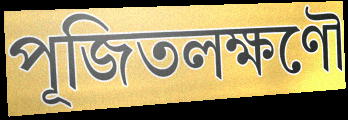
পূজিতলক্ষণৌ